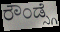
ರೌಂಡ್ಸ್ಗೆ